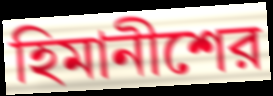
হিমানীশের